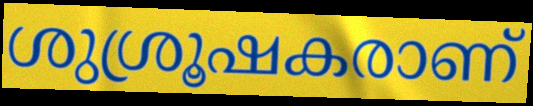
ശുശ്രൂഷകരാണ്